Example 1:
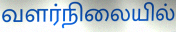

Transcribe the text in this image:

வளர்நிலையில்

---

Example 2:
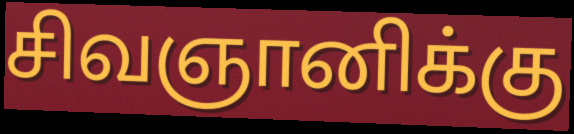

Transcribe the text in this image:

சிவஞானிக்கு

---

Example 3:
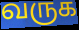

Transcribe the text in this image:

வருக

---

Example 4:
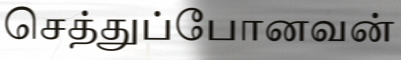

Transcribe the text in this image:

செத்துப்போனவன்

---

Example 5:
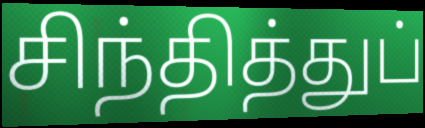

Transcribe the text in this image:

சிந்தித்துப்